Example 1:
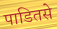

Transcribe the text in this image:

पाडितसे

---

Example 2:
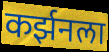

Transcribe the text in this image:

कर्झनला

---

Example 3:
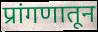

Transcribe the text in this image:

प्रांगणातून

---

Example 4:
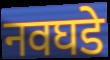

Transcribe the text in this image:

नवघडे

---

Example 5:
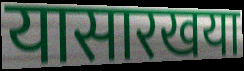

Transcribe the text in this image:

यासारखया